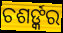
ଚଶର୍ଙ୍କର